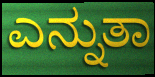
ಎನ್ನುತಾ